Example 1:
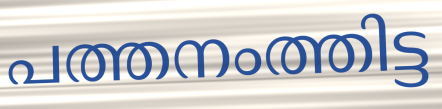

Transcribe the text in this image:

പത്തനംത്തിട്ട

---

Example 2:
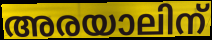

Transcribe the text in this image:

അരയാലിന്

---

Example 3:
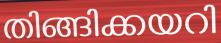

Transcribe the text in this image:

തിങ്ങിക്കയറി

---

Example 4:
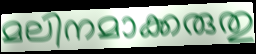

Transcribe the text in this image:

മലിനമാക്കരുതു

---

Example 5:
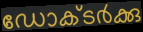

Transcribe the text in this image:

ഡോക്ടർക്കു